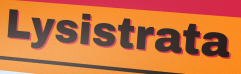
Lysistrata